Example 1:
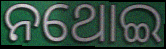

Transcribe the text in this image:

ନଥୋଇ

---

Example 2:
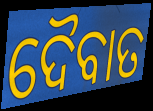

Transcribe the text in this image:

ଦୈବାତ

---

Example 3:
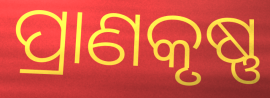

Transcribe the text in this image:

ପ୍ରାଣକୃଷ୍ଣ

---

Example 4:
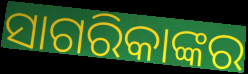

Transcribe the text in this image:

ସାଗରିକାଙ୍କର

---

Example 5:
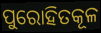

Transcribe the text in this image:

ପୁରୋହିତକୂଳ